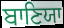
ਬਾਣਿਯਾ